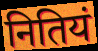
नितियं